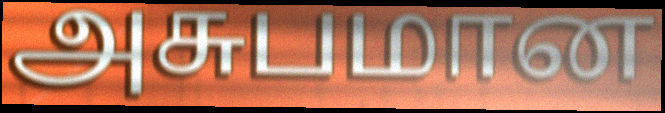
அசுபமான